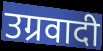
उग्रवादी